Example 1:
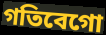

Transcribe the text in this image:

গতিবেগো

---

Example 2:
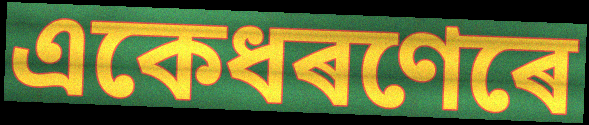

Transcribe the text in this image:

একেধৰণেৰে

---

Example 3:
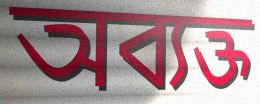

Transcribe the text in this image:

অব্যক্ত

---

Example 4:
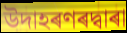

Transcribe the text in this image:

উদাহৰণৰদ্বাৰা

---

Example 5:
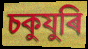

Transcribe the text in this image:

চকুযুৰি